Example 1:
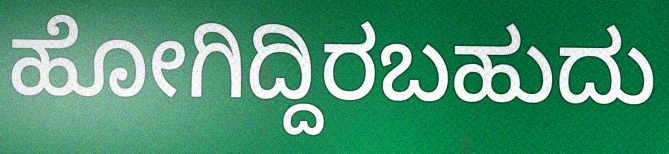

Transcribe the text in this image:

ಹೋಗಿದ್ದಿರಬಹುದು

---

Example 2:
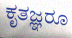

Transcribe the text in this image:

ಕೃತಜ್ಞರೂ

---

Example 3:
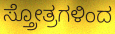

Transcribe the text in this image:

ಸ್ತ್ರೋತ್ರಗಳಿಂದ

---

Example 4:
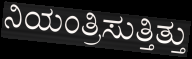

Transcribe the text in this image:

ನಿಯಂತ್ರಿಸುತ್ತಿತ್ತು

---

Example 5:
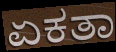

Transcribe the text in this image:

ಏಕತಾ